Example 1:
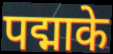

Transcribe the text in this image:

पद्माके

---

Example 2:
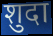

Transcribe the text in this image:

शुदा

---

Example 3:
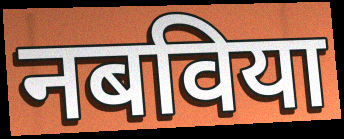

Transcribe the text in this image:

नबविया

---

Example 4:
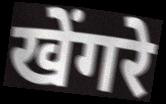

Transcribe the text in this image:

खेंगरे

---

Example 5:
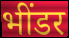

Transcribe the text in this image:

भींडर